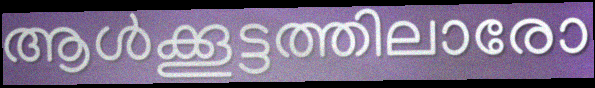
ആൾക്കൂട്ടത്തിലാരോ